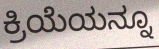
ಕ್ರಿಯೆಯನ್ನೂ